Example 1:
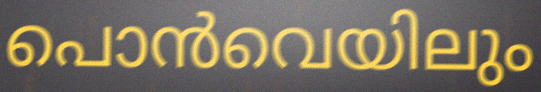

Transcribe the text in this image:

പൊൻവെയിലും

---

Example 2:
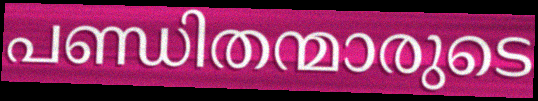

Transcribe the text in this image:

പണ്ഡിതന്മാരുടെ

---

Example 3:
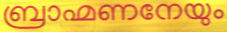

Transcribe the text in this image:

ബ്രാഹ്മണനേയും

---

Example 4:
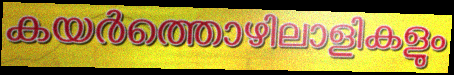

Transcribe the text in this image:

കയർത്തൊഴിലാളികളും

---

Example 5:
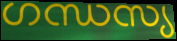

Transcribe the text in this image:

ഗന്ധസ്യ